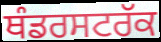
ਥੰਡਰਸਟਰੱਕ